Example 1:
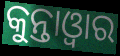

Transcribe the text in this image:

କୁନ୍ତାଓ୍ୱାର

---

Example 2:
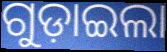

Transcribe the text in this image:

ଗୁଡ଼ାଇଲା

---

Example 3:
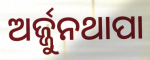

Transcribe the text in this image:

ଅର୍ଜ୍ଜୁନଥାପା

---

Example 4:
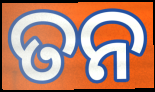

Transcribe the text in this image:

ତନ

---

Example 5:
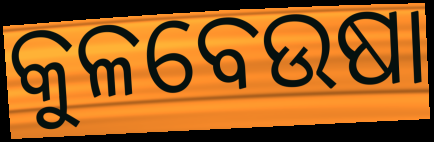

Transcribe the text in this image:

କୁଳବେଉଷା